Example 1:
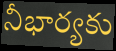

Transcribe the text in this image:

నీభార్యకు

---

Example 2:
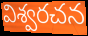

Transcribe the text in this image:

విశ్వరచన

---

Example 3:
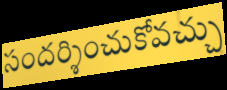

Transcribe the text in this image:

సందర్శించుకోవచ్చు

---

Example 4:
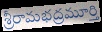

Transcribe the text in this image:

శ్రీరామభద్రమూర్తి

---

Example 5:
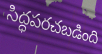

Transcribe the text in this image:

సిద్ధపరచబడింది